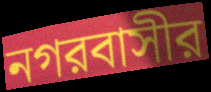
নগরবাসীর